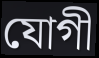
যোগী